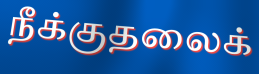
நீக்குதலைக்